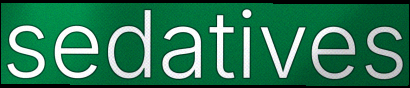
sedatives